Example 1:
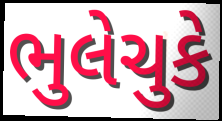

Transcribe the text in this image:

ભુલેચુકે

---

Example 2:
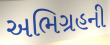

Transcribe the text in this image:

અભિગ્રહની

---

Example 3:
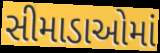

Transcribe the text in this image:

સીમાડાઓમાં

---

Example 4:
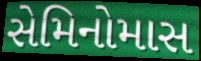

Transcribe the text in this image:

સેમિનોમાસ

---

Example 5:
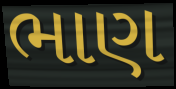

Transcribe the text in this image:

ભાણ